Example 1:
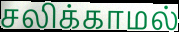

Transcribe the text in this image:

சலிக்காமல்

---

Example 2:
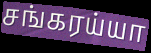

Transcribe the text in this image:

சங்கரய்யா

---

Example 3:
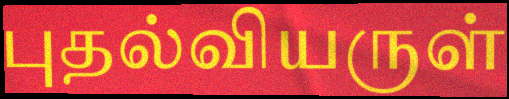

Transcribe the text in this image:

புதல்வியருள்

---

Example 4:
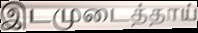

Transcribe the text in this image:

இடமுடைத்தாய்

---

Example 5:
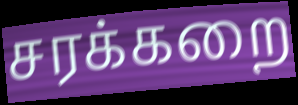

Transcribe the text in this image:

சரக்கறை